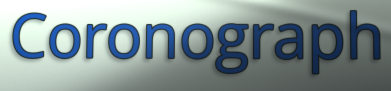
Coronograph